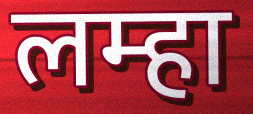
लम्हा